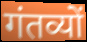
गंतव्यों